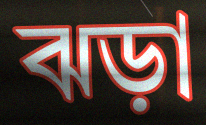
ঝড়া